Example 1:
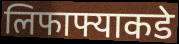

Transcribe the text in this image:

लिफाफ्याकडे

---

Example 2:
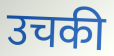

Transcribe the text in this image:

उचकी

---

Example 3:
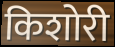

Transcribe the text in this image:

किशोरी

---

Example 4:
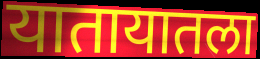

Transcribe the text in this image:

यातायातला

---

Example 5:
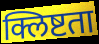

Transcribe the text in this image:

क्लिष्टता